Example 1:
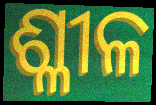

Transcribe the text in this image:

ଶ୍ଳୀଳ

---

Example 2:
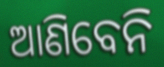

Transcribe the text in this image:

ଆଣିବେନି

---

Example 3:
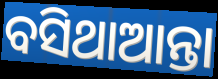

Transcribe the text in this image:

ବସିଥାଆନ୍ତା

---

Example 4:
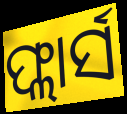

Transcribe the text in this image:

ଫ୍ଲାର୍ସ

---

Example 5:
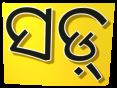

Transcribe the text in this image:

ସଡ଼୍